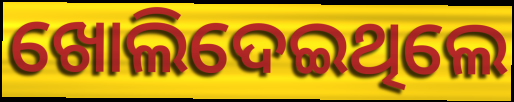
ଖୋଲିଦେଇଥିଲେ